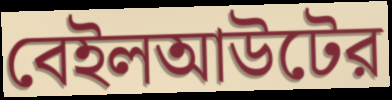
বেইলআউটের